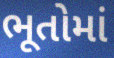
ભૂતોમાં